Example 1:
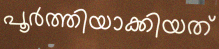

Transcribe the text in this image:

പൂർത്തിയാക്കിയത്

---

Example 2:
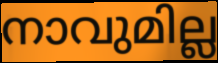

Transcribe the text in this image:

നാവുമില്ല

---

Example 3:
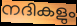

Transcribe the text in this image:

നദികളും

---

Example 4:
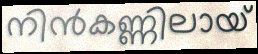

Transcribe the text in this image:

നിൻകണ്ണിലായ്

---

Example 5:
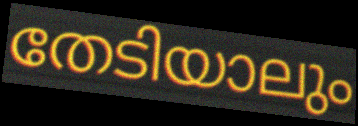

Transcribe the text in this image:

തേടിയാലും